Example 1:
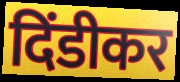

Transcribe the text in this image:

दिंडीकर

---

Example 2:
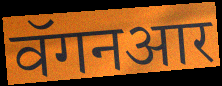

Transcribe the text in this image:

वॅगनआर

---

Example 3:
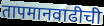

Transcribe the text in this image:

तापमानवाढीची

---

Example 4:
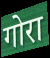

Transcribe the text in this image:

गोरा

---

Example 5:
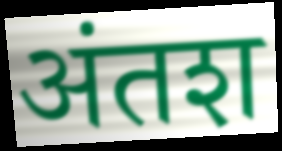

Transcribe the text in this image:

अंतश